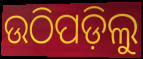
ଉଠିପଡ଼ିଲୁ